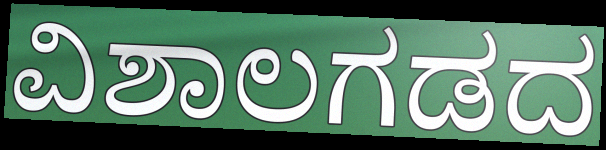
ವಿಶಾಲಗಡದ